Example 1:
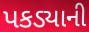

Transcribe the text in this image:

પકડ્યાની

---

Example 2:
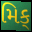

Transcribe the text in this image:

મિક્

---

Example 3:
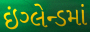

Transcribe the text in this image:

ઇંગ્લેન્ડમાં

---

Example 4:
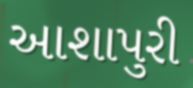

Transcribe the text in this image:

આશાપુરી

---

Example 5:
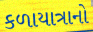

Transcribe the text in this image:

કળાયાત્રાનો